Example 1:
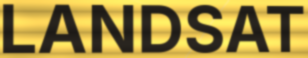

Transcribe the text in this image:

LANDSAT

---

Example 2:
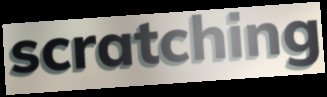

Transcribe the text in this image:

scratching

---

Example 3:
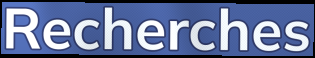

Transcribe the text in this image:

Recherches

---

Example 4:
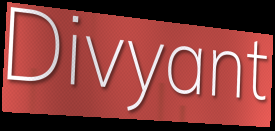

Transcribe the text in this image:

Divyant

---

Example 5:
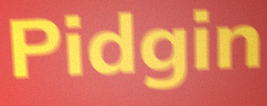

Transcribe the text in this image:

Pidgin